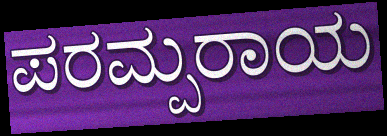
ಪರಮ್ಪರಾಯ